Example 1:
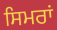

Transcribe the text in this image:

ਸਿਮਰਾਂ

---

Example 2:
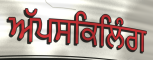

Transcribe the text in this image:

ਅੱਪਸਕਿਲਿੰਗ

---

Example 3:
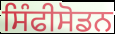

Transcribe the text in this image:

ਸਿੰਫੀਸੋਡਨ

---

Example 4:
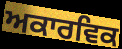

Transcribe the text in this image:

ਅਕਾਰਵਿਕ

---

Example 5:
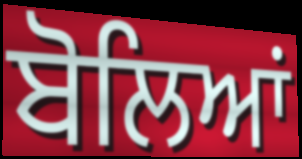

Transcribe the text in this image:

ਬੋਲਿਆਂ